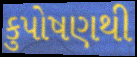
કુપોષણથી